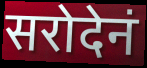
सरोदेनं